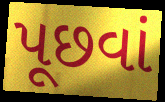
પૂછવાં